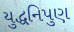
યુદ્ધનિપુણ